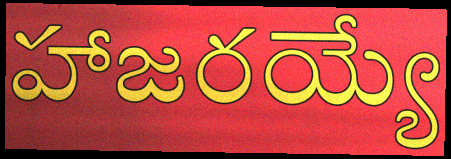
హాజరయ్యే